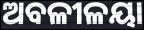
ଅବଳୀଳୟା